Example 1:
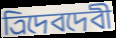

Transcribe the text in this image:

ত্রিদেবদেবী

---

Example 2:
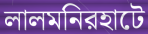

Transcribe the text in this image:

লালমনিরহাটে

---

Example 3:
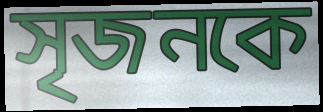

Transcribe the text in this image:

সৃজনকে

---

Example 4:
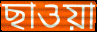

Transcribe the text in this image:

ছাওয়া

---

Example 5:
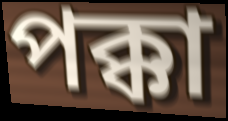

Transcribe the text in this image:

পক্কা